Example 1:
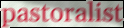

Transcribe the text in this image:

pastoralist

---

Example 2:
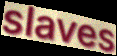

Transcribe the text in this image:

slaves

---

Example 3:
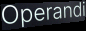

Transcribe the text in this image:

Operandi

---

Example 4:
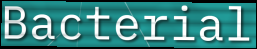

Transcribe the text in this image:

Bacterial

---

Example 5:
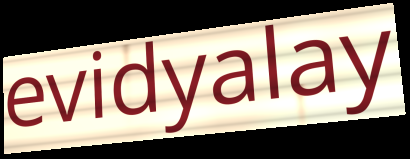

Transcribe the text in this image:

evidyalay